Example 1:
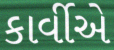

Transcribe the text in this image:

કાર્વીએ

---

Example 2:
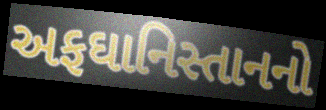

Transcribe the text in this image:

અફઘાનિસ્તાનનો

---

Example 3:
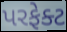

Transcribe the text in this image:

પરફેક્ટ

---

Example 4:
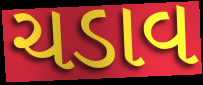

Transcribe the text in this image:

ચડાવ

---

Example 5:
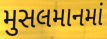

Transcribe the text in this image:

મુસલમાનમાં